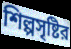
শিল্পসৃষ্টির